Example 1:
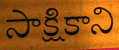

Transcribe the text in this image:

సాక్షికాని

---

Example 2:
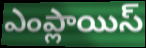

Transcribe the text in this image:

ఎంప్లాయిస్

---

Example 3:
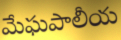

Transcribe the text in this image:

మేఘపాలీయ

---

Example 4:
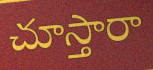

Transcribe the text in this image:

చూస్తారా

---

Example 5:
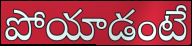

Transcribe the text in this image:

పోయాడంటే